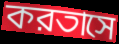
করতাসে